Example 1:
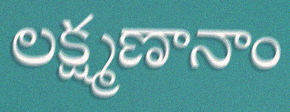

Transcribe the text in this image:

లక్ష్మణానాం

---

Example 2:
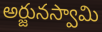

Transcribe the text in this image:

అర్జునస్వామి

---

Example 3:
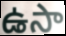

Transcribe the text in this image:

ఉసా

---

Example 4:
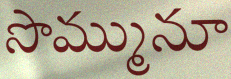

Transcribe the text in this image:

సొమ్మునూ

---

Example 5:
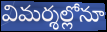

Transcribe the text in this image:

విమర్శల్లోనూ